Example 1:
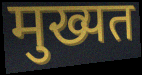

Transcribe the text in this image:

मुख्‍यत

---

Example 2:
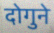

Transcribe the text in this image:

दोगुने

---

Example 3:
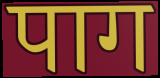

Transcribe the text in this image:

पाग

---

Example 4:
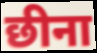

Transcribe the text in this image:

छीना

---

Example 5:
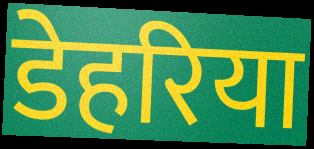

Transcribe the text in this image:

डेहरिया